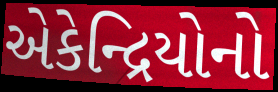
એકેન્દ્રિયોનો